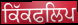
ਕਿੱਕਫਲਿਪ